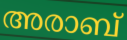
അരാബ്